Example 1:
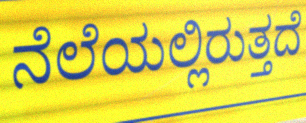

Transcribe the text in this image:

ನೆಲೆಯಲ್ಲಿರುತ್ತದೆ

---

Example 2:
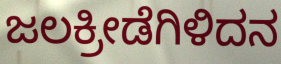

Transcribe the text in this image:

ಜಲಕ್ರೀಡೆಗಿಳಿದನ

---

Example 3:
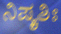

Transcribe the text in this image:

ನಿಷ್ಕೃತಿಃ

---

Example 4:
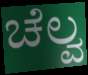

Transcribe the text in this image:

ಚೆಲ್ವ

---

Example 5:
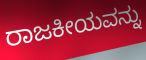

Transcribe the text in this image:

ರಾಜಕೀಯವನ್ನು